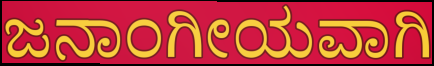
ಜನಾಂಗೀಯವಾಗಿ